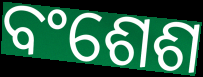
ବଂଶେଶ